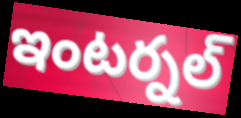
ఇంటర్నల్